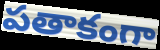
పతాకంగా